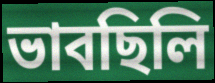
ভাবছিলি